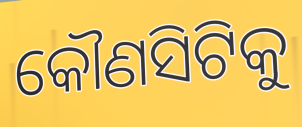
କୌଣସିଟିକୁ